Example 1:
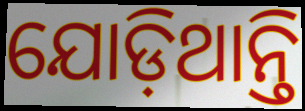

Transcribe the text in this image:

ଯୋଡ଼ିଥାନ୍ତି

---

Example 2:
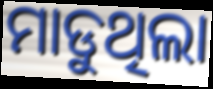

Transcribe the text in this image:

ମାଡୁଥିଲା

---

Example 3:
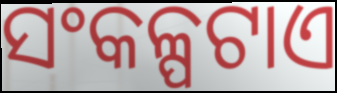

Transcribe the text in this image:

ସଂକଳ୍ପଟାଏ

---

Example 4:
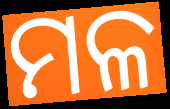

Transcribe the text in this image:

ମଳ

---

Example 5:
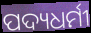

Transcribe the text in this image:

ପଦ୍ୟଧର୍ମୀ